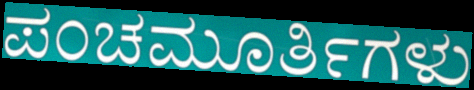
ಪಂಚಮೂರ್ತಿಗಳು